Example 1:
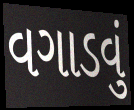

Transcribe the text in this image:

વગાડવું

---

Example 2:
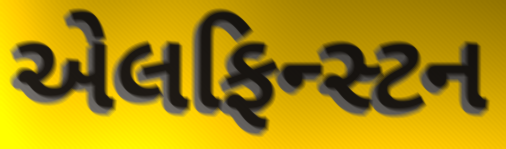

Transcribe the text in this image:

એલફિન્સ્ટન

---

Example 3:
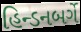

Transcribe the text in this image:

હિન્ડનબર્ગે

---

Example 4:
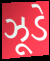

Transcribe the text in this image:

ઝૂડે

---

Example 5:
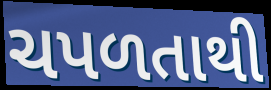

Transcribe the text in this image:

ચપળતાથી